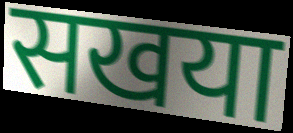
सखया